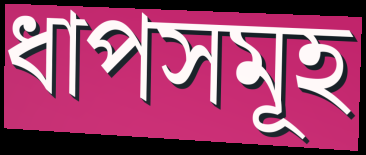
ধাপসমূহ